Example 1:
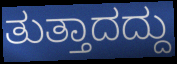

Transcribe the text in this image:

ತುತ್ತಾದದ್ದು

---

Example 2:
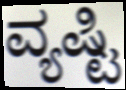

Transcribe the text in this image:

ವ್ಯಷ್ಟಿ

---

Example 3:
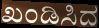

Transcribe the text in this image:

ಖಂಡಿಸಿದ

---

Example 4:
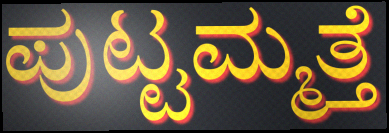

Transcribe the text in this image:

ಪುಟ್ಟಮ್ಮತ್ತೆ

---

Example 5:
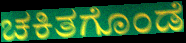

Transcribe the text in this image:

ಚಕಿತಗೊಂಡೆ